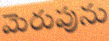
మెరుపును